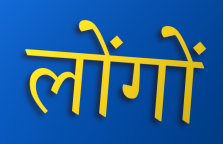
लोंगों